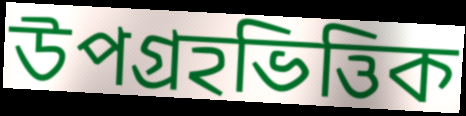
উপগ্রহভিত্তিক